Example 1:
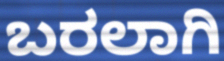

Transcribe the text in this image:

ಬರಲಾಗಿ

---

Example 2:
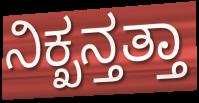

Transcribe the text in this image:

ನಿಕ್ಖನ್ತತ್ತಾ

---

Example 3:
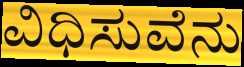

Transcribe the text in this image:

ವಿಧಿಸುವೆನು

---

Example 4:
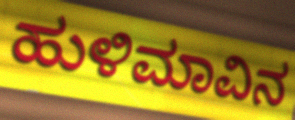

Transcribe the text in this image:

ಹುಳಿಮಾವಿನ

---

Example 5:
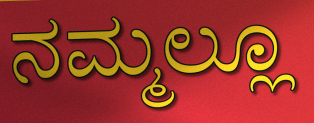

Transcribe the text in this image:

ನಮ್ಮಲ್ಲೂ